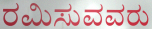
ರಮಿಸುವವರು